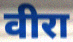
वीरा